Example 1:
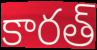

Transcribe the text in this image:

కారత్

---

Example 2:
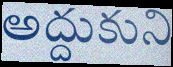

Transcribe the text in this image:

అద్దుకుని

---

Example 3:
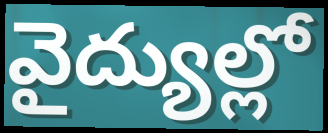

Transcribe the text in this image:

వైద్యుల్లో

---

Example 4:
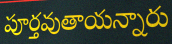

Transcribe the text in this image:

పూర్తవుతాయన్నారు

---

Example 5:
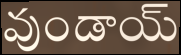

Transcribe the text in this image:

వుండాయ్